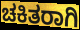
ಚಕಿತರಾಗಿ